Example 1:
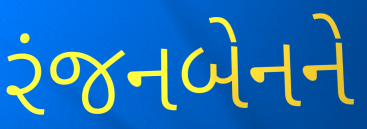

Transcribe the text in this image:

રંજનબેનને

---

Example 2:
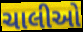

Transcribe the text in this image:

ચાલીઓ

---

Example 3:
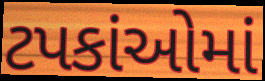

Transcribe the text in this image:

ટપકાંઓમાં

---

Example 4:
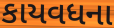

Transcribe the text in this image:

કાયવધના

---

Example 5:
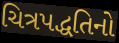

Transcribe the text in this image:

ચિત્રપદ્ધતિનો